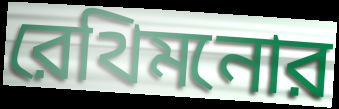
রেথিমনোর